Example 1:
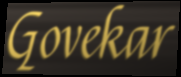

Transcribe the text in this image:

Govekar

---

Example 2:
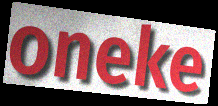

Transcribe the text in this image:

oneke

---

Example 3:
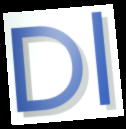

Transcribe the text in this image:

Dl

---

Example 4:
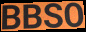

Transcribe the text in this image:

BBSO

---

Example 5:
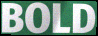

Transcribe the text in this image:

BOLD